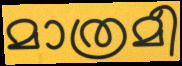
മാത്രമീ